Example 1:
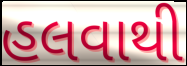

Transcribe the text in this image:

હલવાથી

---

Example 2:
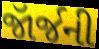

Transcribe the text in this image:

જૉર્જની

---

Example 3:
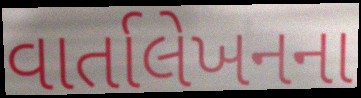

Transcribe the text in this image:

વાર્તાલેખનના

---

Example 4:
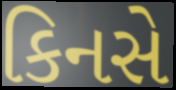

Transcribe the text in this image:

કિનસે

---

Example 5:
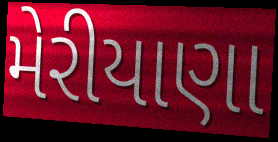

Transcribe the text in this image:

મેરીયાણા